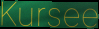
Kursee